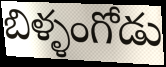
బిళ్ళంగోడు